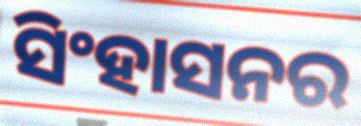
ସିଂହାସନର